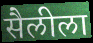
सैलीला